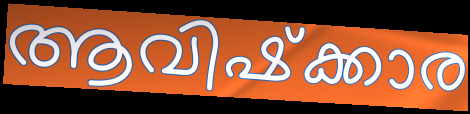
ആവിഷ്‌ക്കാര